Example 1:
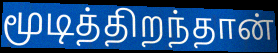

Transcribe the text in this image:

மூடித்திறந்தான்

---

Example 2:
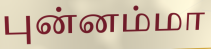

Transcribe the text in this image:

புன்னம்மா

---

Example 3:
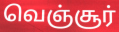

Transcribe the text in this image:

வெஞ்சூர்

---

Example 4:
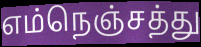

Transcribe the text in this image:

எம்நெஞ்சத்து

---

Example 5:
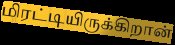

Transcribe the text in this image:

மிரட்டியிருக்கிறான்